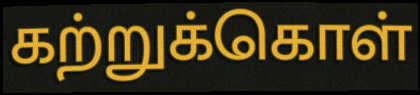
கற்றுக்கொள்